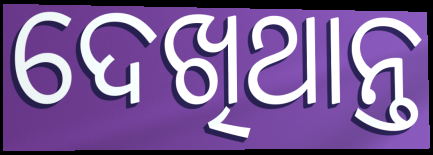
ଦେଖିଥାନ୍ତ